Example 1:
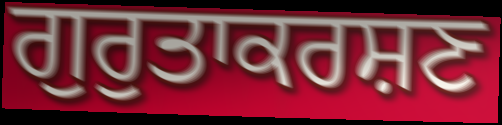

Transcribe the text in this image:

ਗੁਰੁਤਾਕਰਸ਼ਣ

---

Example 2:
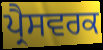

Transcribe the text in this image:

ਪ੍ਰੈਸਵਰਕ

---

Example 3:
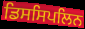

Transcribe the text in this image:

ਡਿਸਸਿਪਲਿਨ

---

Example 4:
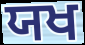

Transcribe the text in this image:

ਯਖ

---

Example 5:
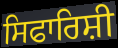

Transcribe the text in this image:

ਸਿਫਾਰਿਸ਼ੀ